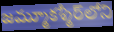
జమ్మూకశ్మీర్‌లోని